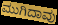
ಮುಗಿದಾವು